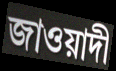
জাওয়াদী